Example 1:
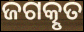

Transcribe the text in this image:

ଜଗତ୍କୃତ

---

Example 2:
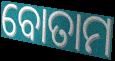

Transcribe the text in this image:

ବୋତାମ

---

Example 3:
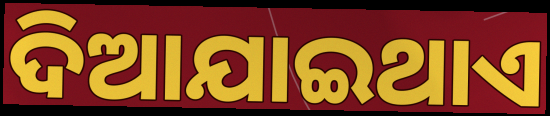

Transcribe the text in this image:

ଦିଆଯାଇଥାଏ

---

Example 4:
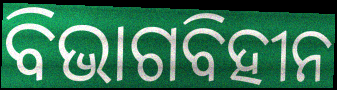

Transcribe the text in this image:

ବିଭାଗବିହୀନ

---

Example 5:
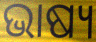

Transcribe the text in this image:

ଭାଷ୍ୟ